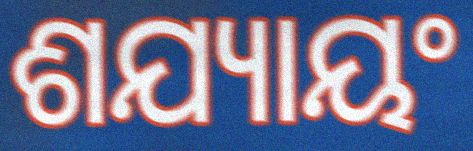
ଶଯ୍ୟାୟଂ